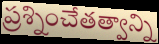
ప్రశ్నించేతత్వాన్ని